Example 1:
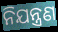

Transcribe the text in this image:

ନିଯନ୍ତ୍ରଣ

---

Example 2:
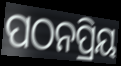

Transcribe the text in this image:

ପଠନପ୍ରିୟ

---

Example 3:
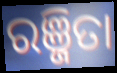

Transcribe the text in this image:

ରଞ୍ଜିତା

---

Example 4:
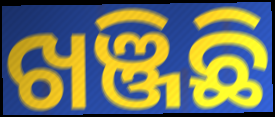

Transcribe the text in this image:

ଖଞ୍ଜିଛି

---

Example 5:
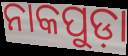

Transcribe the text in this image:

ନାକପୁଡ଼ା